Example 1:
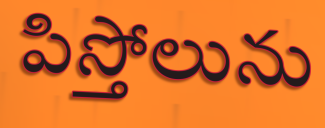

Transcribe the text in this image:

పిస్తోలును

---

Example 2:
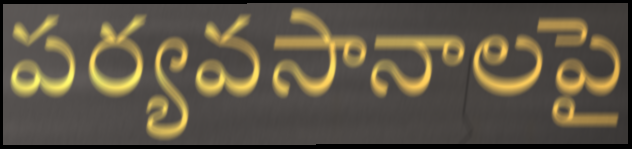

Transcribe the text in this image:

పర్యవసానాలపై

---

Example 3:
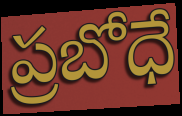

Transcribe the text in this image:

ప్రబోధే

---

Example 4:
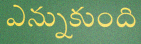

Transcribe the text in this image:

ఎన్నుకుంది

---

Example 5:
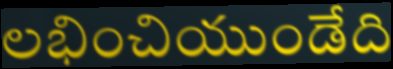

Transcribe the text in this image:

లభించియుండేది